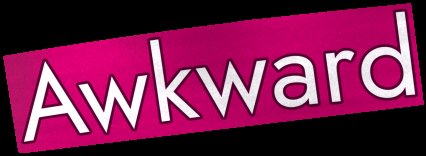
Awkward